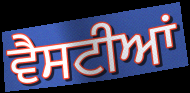
ਵੈਸਟੀਆਂ